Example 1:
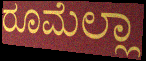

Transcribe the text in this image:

ರೂಮೆಲ್ಲಾ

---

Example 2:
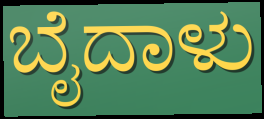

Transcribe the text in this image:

ಬೈದಾಳು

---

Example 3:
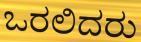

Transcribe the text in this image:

ಒರಲಿದರು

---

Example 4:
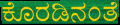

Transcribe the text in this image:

ಕೊರಡಿನಂತೆ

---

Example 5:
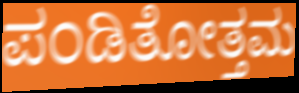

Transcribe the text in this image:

ಪಂಡಿತೋತ್ತಮ